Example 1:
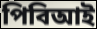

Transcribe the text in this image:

পিবিআই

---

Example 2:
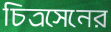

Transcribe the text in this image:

চিত্রসেনের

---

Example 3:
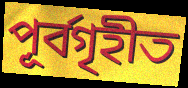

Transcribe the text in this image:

পূর্বগৃহীত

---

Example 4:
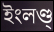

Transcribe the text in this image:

ইংলণ্ড্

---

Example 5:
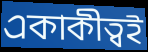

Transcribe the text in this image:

একাকীত্বই